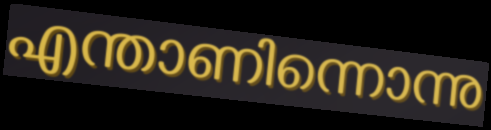
എന്താണിന്നൊന്നു